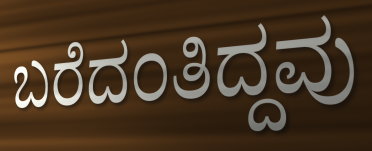
ಬರೆದಂತಿದ್ದವು